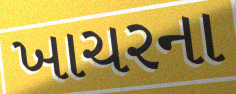
ખાચરના